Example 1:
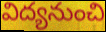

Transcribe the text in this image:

విద్యనుంచి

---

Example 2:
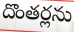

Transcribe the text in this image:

దొంతర్లను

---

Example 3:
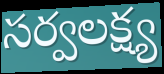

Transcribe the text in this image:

సర్వలక్ష్య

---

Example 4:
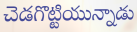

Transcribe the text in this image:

చెడగొట్టియున్నాడు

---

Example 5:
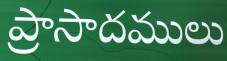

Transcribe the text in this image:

ప్రాసాదములు